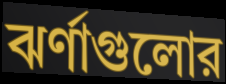
ঝর্ণাগুলোর